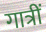
गात्रीं